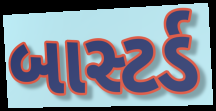
બાસ્ટર્ડ